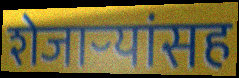
शेजाऱ्यांसह